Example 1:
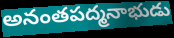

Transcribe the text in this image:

అనంతపద్మనాభుడు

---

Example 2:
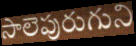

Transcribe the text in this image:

సాలెపురుగుని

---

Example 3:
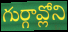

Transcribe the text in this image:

గుర్గావ్లోని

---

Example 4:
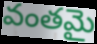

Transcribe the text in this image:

వంతమై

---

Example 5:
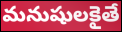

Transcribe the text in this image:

మనుషులకైతే